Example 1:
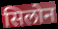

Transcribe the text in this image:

सिलोन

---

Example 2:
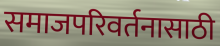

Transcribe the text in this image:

समाजपरिवर्तनासाठी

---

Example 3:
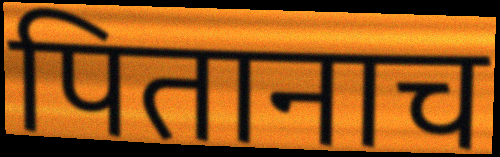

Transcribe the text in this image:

पितानाच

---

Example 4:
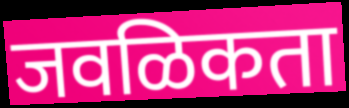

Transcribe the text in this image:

जवळिकता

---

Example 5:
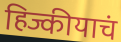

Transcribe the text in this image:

हिज्कीयाचं